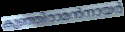
കുഞ്ഞിരാമൻനായർ